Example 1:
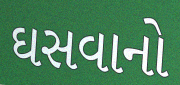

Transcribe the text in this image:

ઘસવાનો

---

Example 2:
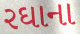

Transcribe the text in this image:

રઘાના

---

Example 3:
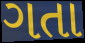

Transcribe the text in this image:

ગતા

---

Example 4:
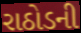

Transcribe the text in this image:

રાઠોડની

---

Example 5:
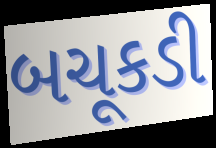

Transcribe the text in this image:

બચૂકડી